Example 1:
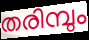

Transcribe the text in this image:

തരിമ്പും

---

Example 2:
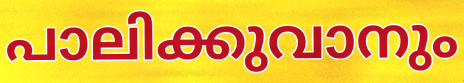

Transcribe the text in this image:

പാലിക്കുവാനും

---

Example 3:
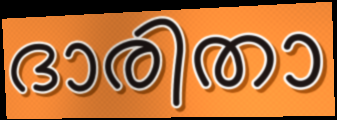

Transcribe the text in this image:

ദാരിതാ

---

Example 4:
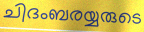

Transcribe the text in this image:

ചിദംബരയ്യരുടെ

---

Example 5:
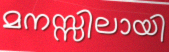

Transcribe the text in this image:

മനസ്സിലായി